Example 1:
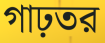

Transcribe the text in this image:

গাঢ়তর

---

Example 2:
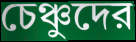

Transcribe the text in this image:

চেঞ্চুদের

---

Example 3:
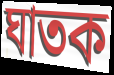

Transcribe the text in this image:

ঘাতক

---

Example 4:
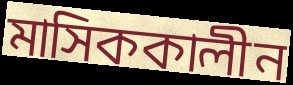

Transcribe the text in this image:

মাসিককালীন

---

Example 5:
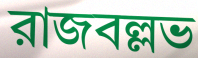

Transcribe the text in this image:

রাজবল্লভ